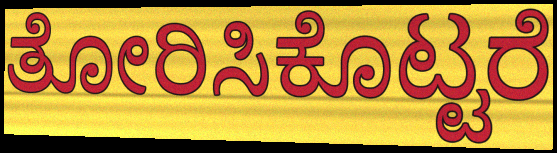
ತೋರಿಸಿಕೊಟ್ಟರೆ